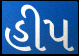
હીપ